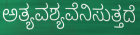
ಅತ್ಯವಶ್ಯವೆನಿಸುತ್ತದೆ